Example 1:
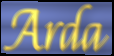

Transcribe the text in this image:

Arda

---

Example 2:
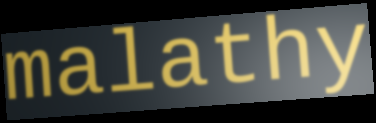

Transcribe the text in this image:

malathy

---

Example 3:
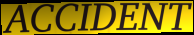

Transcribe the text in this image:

ACCIDENT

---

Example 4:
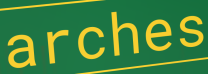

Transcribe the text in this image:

arches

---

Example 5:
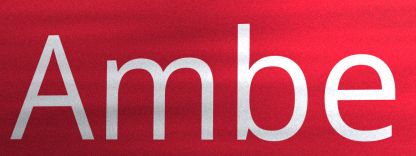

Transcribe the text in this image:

Ambe